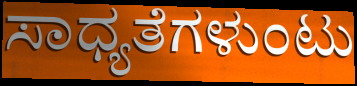
ಸಾಧ್ಯತೆಗಳುಂಟು